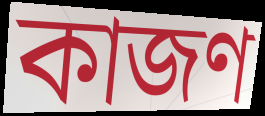
কাজণ